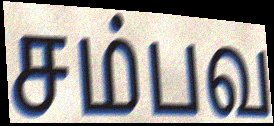
சம்பவ